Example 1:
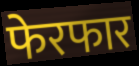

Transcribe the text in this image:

फेरफार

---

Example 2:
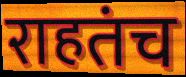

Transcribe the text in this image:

राहतंच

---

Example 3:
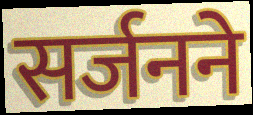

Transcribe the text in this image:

सर्जनने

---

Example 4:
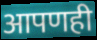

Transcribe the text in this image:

आपणही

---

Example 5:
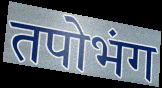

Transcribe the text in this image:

तपोभंग